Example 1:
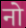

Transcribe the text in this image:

नो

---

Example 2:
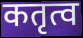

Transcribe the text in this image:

कतृत्व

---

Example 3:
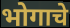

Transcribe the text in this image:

भोगाचे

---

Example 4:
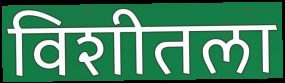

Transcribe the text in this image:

विशीतला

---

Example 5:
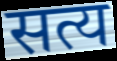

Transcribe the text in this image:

सत्य